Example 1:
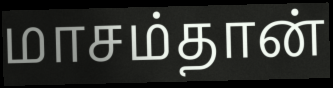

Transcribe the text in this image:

மாசம்தான்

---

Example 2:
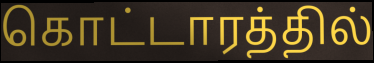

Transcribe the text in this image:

கொட்டாரத்தில்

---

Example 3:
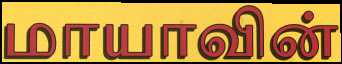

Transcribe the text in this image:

மாயாவின்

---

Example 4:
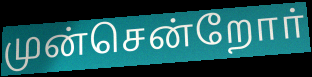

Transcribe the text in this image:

முன்சென்றோர்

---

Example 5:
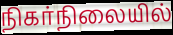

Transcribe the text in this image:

நிகர்நிலையில்